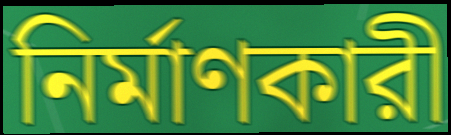
নির্মাণকারী